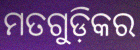
ମତଗୁଡ଼ିକର